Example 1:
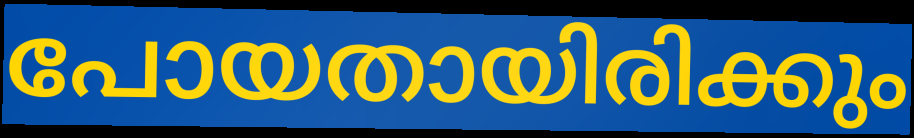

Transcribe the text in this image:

പോയതായിരിക്കും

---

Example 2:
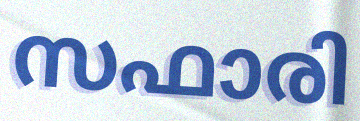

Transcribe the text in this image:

സഫാരി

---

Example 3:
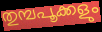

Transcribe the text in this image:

തുമ്പപൂക്കളും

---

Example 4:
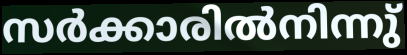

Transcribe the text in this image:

സർക്കാരിൽനിന്നു്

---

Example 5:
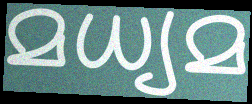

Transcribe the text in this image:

മധ്യമ